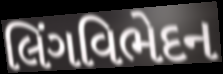
લિંગવિભેદન